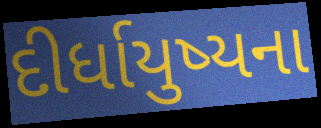
દીર્ધાયુષ્યના